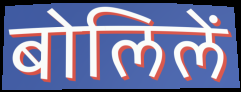
बोलिलें